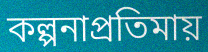
কল্পনাপ্রতিমায়